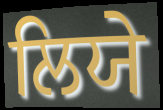
ਲਿਯੇ